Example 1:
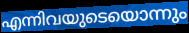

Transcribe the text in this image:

എന്നിവയുടെയൊന്നും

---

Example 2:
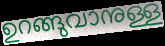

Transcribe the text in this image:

ഉറങ്ങുവാനുള്ള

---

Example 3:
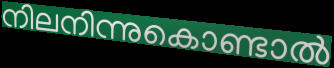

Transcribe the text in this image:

നിലനിന്നുകൊണ്ടാൽ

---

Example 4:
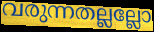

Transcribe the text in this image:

വരുന്നതല്ലല്ലോ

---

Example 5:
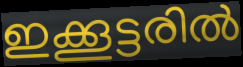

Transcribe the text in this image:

ഇക്കൂട്ടരിൽ